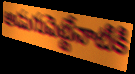
అడుగుపెట్టేనాటికి